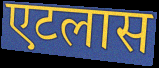
एटलास